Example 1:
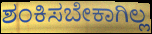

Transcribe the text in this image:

ಶಂಕಿಸಬೇಕಾಗಿಲ್ಲ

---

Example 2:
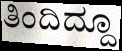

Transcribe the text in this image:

ತಿಂದಿದ್ದೂ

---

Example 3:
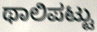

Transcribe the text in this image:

ಥಾಲಿಪಟ್ಟು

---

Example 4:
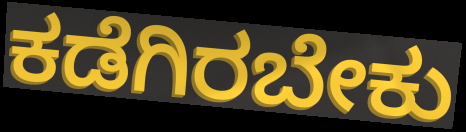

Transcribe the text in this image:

ಕಡೆಗಿರಬೇಕು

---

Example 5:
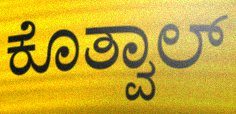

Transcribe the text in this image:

ಕೊತ್ವಾಲ್